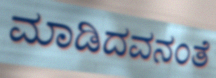
ಮಾಡಿದವನಂತೆ